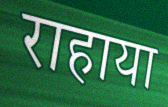
राहाया